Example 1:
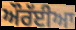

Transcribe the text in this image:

ਔਰੱਈਆ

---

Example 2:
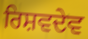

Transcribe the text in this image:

ਰਿਸ਼ਵਦੇਵ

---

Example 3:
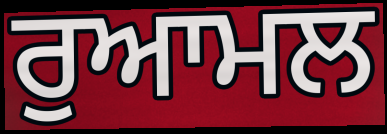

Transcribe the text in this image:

ਰੁਆਮਲ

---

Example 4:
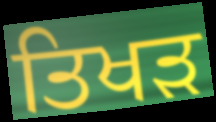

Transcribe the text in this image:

ਤਿਖੜ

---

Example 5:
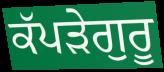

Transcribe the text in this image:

ਕੱਪੜੇਗੁਰੂ